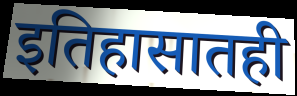
इतिहासातही